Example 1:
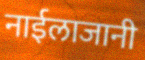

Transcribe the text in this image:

नाईलाजानी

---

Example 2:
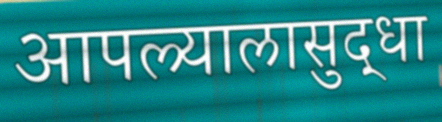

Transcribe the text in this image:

आपल्यालासुद्धा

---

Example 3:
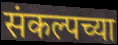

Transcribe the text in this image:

संकल्पच्या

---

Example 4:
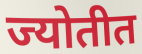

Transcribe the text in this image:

ज्योतीत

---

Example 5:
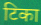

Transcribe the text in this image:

टिका